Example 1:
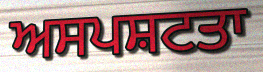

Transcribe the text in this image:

ਅਸਪਸ਼ਟਤਾ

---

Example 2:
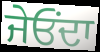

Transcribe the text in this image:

ਜੇਓੰਦਾ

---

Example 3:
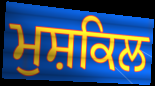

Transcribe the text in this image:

ਮੁਸ਼ਕਿਲ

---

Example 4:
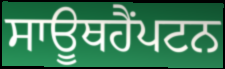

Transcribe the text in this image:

ਸਾਊਥਹੈਂਪਟਨ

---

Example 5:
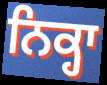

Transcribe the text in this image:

ਨਿਕ੍ਹਾ